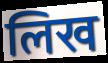
लिख